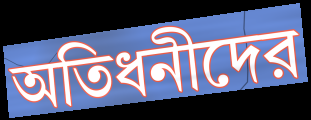
অতিধনীদের